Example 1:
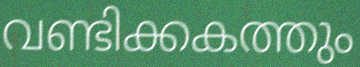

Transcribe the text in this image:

വണ്ടിക്കകത്തും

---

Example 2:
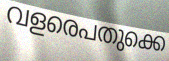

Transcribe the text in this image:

വളരെപതുക്കെ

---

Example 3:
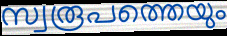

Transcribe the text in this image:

സ്വരൂപത്തെയും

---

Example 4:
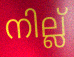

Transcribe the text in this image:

നില്ല്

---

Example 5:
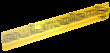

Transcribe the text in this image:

അധിപനായിരുന്നിട്ടും